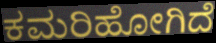
ಕಮರಿಹೋಗಿದೆ